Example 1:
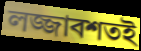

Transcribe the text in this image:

লজ্জাবশতই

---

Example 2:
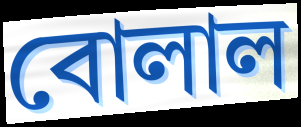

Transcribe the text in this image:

বোলাল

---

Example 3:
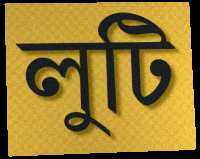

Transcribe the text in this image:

লুটি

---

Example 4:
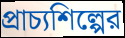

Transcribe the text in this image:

প্রাচ্যশিল্পের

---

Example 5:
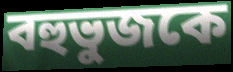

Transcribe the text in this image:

বহুভুজকে